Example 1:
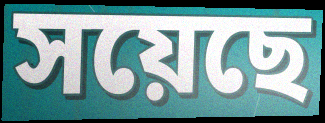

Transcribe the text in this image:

সয়েছে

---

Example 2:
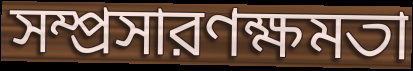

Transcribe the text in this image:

সম্প্রসারণক্ষমতা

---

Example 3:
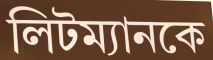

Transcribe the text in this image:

লিটম্যানকে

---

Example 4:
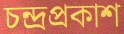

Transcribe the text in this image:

চন্দ্রপ্রকাশ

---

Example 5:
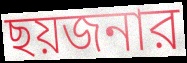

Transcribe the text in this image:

ছয়জনার